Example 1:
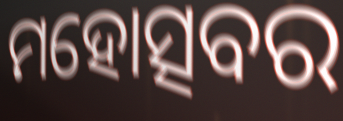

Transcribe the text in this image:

ମହୋତ୍ସବର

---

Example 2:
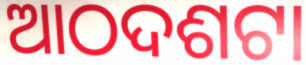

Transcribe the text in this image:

ଆଠଦଶଟା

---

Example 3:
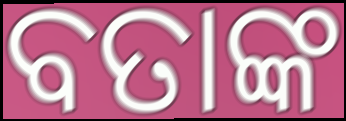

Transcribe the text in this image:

ବତାଙ୍କ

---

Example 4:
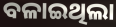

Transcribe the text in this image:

ବଳାଇଥିଲା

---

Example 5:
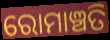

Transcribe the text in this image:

ରୋମାଞ୍ଚତି